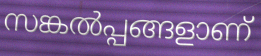
സങ്കൽപ്പങ്ങളാണ്